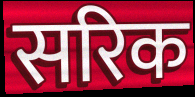
सरिक